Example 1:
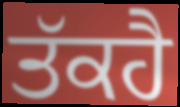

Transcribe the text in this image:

ਤੱਕਹੈ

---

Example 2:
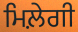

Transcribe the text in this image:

ਮਿਲ਼ੇਗੀ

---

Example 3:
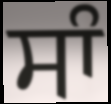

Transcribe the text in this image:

ਸਾੰ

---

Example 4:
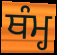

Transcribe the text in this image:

ਥੰਮ੍ਹ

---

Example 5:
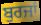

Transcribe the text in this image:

ਬੁਰਜਾਂ